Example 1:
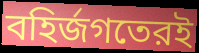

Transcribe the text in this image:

বহির্জগতেরই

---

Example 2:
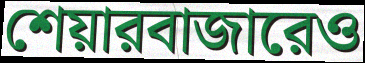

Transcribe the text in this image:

শেয়ারবাজারেও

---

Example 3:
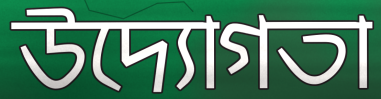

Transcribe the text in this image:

উদ্যোগতা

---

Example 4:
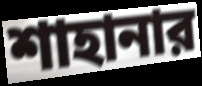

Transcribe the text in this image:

শাহানার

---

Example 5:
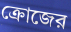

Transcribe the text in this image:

ক্রোজের